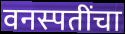
वनस्पतींचा